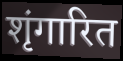
शृंगारित